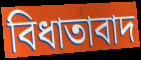
বিধাতাবাদ